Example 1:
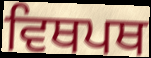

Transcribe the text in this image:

ਵਿਥਪਥ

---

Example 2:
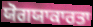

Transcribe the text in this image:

ਯੋਗਯਾਕਾਰਤਾ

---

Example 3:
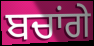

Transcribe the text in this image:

ਬਚਾਂਗੇ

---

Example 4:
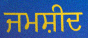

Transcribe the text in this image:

ਜਮਸ਼ੀਦ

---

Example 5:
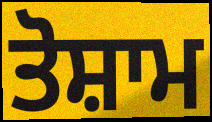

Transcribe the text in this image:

ਤੋਸ਼ਾਮ